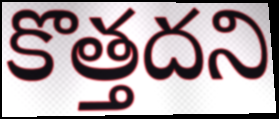
కొత్తదని